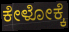
ಕೇಳೋಕ್ಕೆ